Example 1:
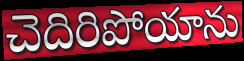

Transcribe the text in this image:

చెదిరిపోయాను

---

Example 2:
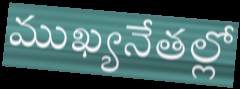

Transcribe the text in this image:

ముఖ్యనేతల్లో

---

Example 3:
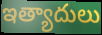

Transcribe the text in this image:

ఇత్యాదులు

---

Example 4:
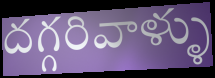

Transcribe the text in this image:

దగ్గరివాళ్ళు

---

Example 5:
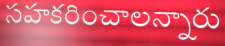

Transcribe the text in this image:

సహకరించాలన్నారు